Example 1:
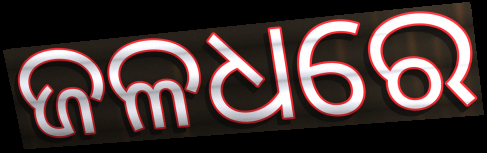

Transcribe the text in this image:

ଜଳଧରେ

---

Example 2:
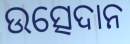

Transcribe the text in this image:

ଉତ୍ସେଦାନ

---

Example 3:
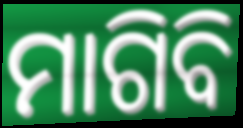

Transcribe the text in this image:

ମାଗିବି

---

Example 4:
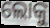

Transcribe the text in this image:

ଲୋକୁ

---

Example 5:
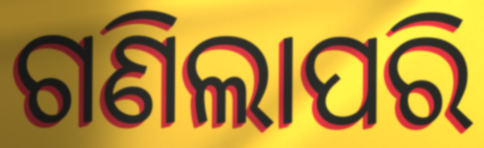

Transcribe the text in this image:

ଗଣିଲାପରି